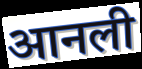
आनली